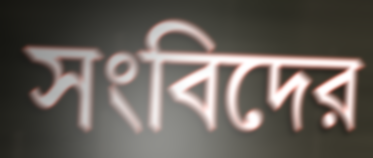
সংবিদের